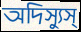
অদিস্যুস্